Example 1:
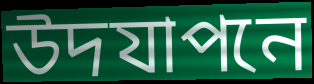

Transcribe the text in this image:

উদযাপনে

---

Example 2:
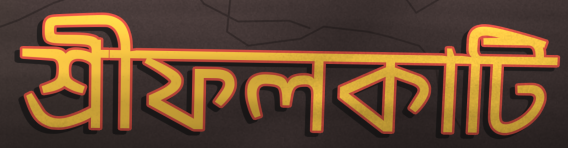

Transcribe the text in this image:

শ্রীফলকাটি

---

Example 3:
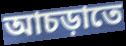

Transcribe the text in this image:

আচড়াতে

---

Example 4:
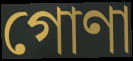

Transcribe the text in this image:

গোণা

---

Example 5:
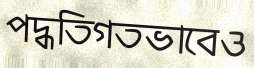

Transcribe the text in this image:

পদ্ধতিগতভাবেও